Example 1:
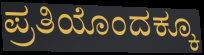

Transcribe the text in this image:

ಪ್ರತಿಯೊಂದಕ್ಕೂ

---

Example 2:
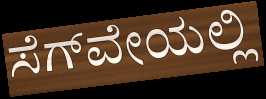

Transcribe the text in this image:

ಸೆಗ್‌ವೇಯಲ್ಲಿ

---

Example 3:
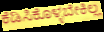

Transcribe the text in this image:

ಕೆಡಿಸಿಕೊಳ್ಳಬೇಕಿಲ್ಲ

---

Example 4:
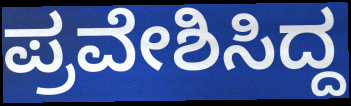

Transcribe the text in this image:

ಪ್ರವೇಶಿಸಿದ್ದ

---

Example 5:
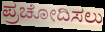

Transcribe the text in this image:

ಪ್ರಚೋದಿಸಲು